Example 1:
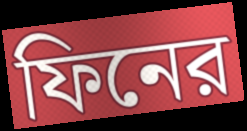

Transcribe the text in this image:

ফিনের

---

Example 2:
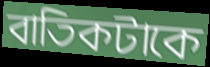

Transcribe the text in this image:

বাতিকটাকে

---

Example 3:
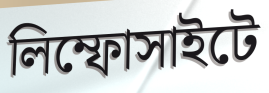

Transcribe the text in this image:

লিম্ফোসাইটে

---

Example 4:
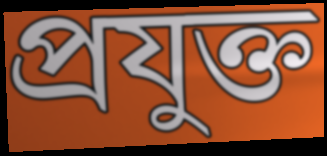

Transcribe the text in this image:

প্রযুক্ত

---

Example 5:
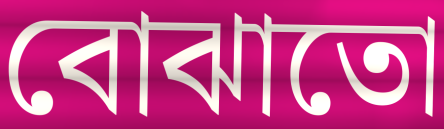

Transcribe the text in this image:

বোঝাতো